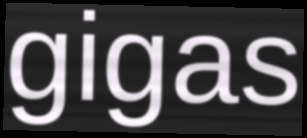
gigas